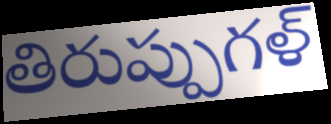
తిరుప్పుగళ్